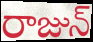
రాజున్